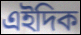
এইদিক